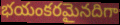
భయంకరమైనదిగా